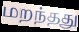
மறந்தது